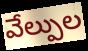
వేల్పుల